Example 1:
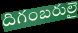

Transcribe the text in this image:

దిగంబరులై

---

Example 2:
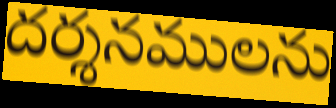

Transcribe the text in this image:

దర్శనములను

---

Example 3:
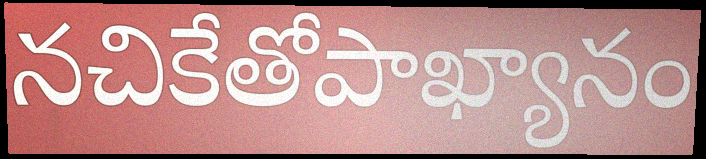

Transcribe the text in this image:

నచికేతోపాఖ్యానం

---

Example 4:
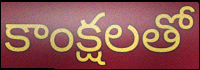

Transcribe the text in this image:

కాంక్షలతో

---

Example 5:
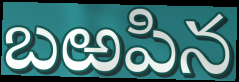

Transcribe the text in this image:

బఱపిన